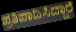
ಪ್ರತಿಪಾದಿಸಿದ್ದಾರೆ